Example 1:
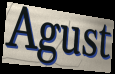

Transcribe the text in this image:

Agust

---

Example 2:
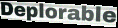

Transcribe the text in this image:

Deplorable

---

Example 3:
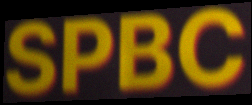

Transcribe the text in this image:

SPBC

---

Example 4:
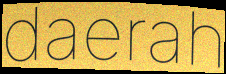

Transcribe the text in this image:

daerah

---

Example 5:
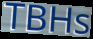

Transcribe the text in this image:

TBHs